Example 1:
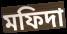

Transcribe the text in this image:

মফিদা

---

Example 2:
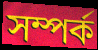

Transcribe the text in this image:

সম্পর্ক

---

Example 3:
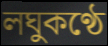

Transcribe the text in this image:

লঘুকণ্ঠে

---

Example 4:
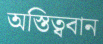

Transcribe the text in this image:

অস্তিত্ববান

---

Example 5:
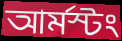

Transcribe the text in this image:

আর্মস্টং